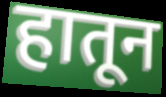
हातून